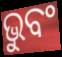
ଭୁବଂ